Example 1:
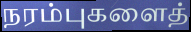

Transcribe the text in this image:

நரம்புகளைத்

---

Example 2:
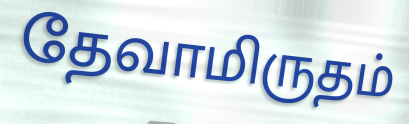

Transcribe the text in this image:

தேவாமிருதம்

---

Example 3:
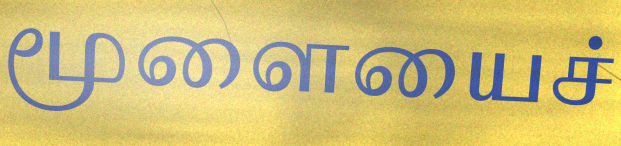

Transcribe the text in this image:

மூளையைச்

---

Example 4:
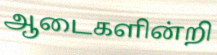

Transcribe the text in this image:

ஆடைகளின்றி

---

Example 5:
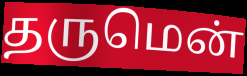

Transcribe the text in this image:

தருமென்